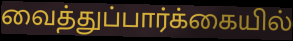
வைத்துப்பார்க்கையில்